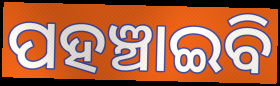
ପହଞ୍ଚାଇବି